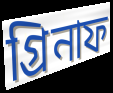
গ্রিনাফ